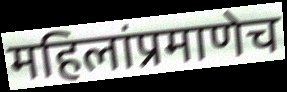
महिलांप्रमाणेच